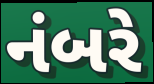
નંબરે